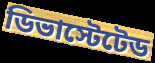
ডিভাস্টেটেড